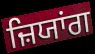
ਜ਼ਿਯਾਂਗ